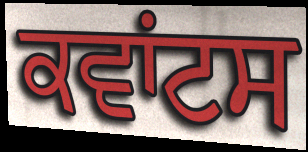
ਕਵਾਂਟਸ